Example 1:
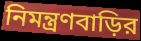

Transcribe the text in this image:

নিমন্ত্রণবাড়ির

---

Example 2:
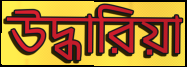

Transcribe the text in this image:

উদ্ধারিয়া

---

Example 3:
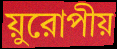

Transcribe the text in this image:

য়ুরোপীয়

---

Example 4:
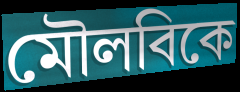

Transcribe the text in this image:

মৌলবিকে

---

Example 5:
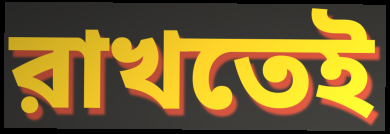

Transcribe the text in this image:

রাখতেই